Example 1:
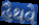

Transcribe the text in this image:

હૈથવે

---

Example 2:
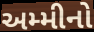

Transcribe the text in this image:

અમ્મીનો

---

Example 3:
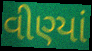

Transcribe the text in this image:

વીણ્યાં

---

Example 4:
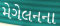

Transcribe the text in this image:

મેગેલનના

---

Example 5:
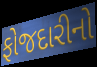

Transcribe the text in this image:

ફોજદારીનો